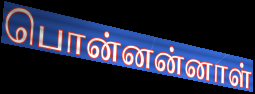
பொன்னன்னாள்